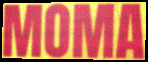
MOMA